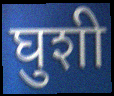
घुशी